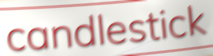
candlestick